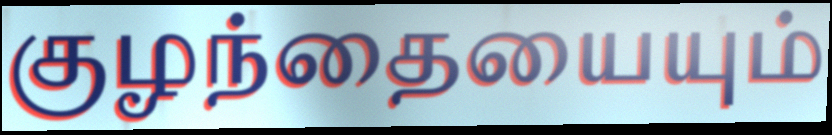
குழந்தையையும்